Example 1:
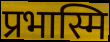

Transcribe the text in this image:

प्रभास्मि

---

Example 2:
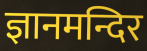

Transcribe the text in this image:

ज्ञानमन्दिर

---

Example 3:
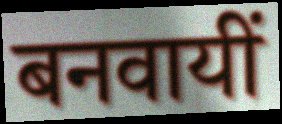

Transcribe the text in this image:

बनवायीं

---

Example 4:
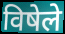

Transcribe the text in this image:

विषेले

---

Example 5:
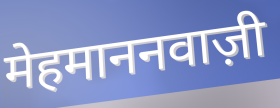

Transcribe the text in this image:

मेहमाननवाज़ी